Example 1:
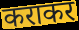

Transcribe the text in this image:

कराकर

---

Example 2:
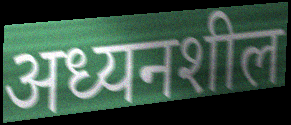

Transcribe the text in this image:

अध्यनशील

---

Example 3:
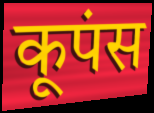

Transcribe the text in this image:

कूपंस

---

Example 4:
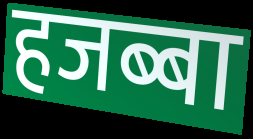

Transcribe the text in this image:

हजब्बा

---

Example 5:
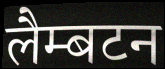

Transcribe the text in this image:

लैम्बटन